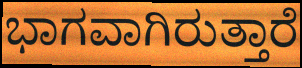
ಭಾಗವಾಗಿರುತ್ತಾರೆ